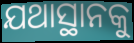
ଯଥାସ୍ଥାନକୁ